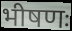
भीषणः